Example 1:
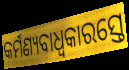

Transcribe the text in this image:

କର୍ମଣ୍ୟବାଧ୍ୱକାରସ୍ତେ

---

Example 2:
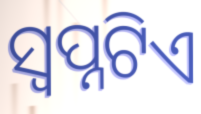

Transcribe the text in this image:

ସ୍ବପ୍ନଟିଏ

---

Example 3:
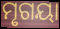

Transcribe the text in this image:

ମୃଗୟା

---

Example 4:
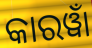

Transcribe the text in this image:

କାରୱାଁ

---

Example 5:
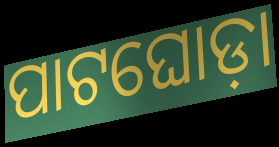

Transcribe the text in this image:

ପାଟଘୋଡ଼ା